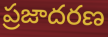
ప్రజాదరణ